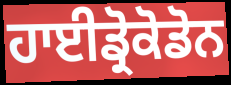
ਹਾਈਡ੍ਰੋਕੋਡੋਨ